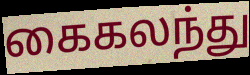
கைகலந்து